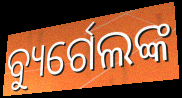
ବ୍ୟୁର୍ଗେଲଙ୍କ